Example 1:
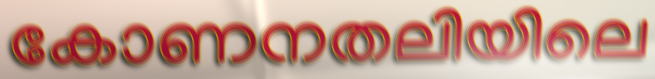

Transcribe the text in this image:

കോണനതലിയിലെ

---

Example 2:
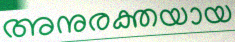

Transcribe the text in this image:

അനുരക്തയായ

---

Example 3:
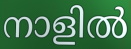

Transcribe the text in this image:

നാളിൽ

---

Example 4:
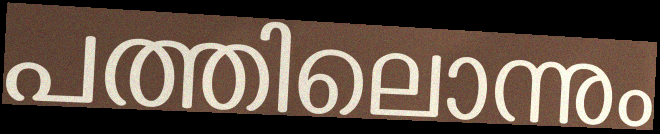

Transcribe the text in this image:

പത്തിലൊന്നും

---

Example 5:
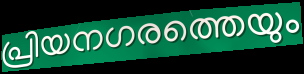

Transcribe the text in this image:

പ്രിയനഗരത്തെയും